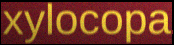
xylocopa